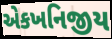
એકખનિજીય